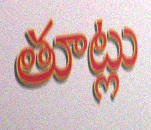
తూట్లు